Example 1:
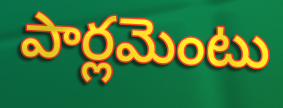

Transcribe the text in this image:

పార్లమెంటు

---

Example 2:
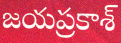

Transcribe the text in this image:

జయప్రకాశ్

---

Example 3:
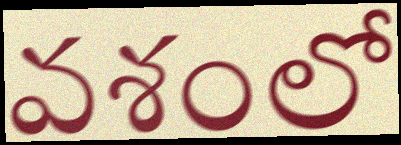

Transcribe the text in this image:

వశంలో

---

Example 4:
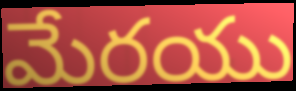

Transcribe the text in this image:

మేరయు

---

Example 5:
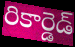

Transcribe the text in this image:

రికార్డెడ్